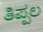
ತಿಪ್ಪಲ